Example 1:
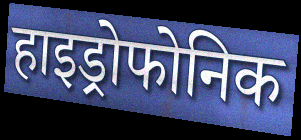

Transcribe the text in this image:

हाइड्रोफोनिक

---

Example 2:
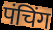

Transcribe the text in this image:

पंचिंग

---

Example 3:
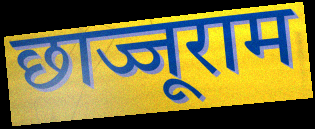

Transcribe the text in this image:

छाज्जूराम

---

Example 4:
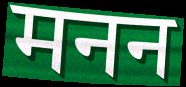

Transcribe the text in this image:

मनन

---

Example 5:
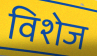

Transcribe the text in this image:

विशेज